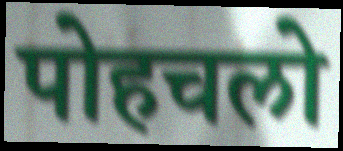
पोहचलो